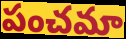
పంచమా